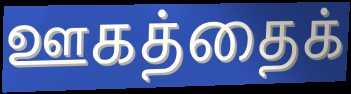
ஊகத்தைக்